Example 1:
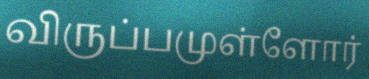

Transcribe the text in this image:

விருப்பமுள்ளோர்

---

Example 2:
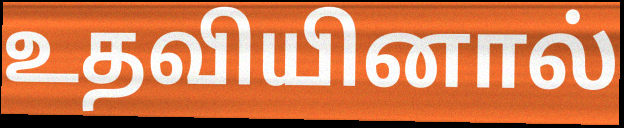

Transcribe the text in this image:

உதவியினால்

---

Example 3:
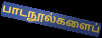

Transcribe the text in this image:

பாடநூல்களைப்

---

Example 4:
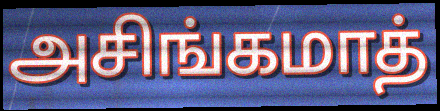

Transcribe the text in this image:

அசிங்கமாத்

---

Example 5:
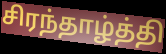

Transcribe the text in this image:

சிரந்தாழ்த்தி